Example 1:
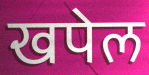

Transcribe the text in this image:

खपेल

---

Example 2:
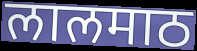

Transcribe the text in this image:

लालमाठ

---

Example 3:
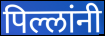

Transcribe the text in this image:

पिल्लांनी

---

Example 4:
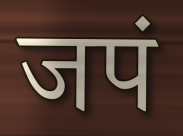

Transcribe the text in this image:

जपं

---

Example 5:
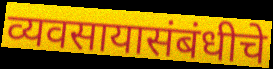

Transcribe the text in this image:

व्यवसायासंबंधीचे